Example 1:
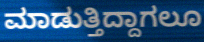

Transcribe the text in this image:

ಮಾಡುತ್ತಿದ್ದಾಗಲೂ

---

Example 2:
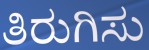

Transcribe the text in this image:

ತಿರುಗಿಸು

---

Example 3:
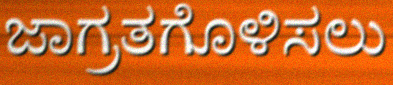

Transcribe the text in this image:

ಜಾಗ್ರತಗೊಳಿಸಲು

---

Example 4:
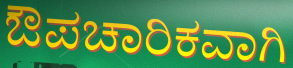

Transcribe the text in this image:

ಔಪಚಾರಿಕವಾಗಿ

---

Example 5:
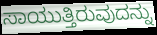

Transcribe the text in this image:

ಸಾಯುತ್ತಿರುವುದನ್ನು